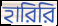
হারিরি